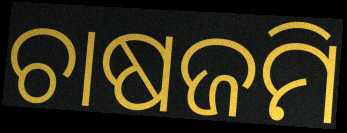
ଚାଷଜମି